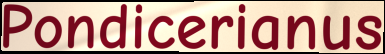
Pondicerianus